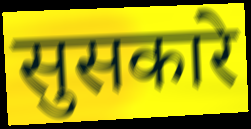
सुसकारे